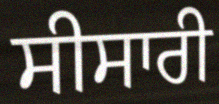
ਸੀਸਾਰੀ